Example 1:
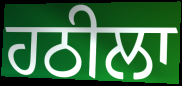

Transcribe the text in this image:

ਹਠੀਲਾ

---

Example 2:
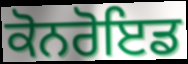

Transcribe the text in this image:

ਕੋਨਰੋਇਡ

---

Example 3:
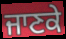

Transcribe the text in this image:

ਜਾਣਕੇ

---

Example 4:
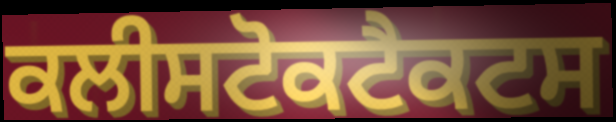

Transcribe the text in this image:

ਕਲੀਸਟੋਕਟੈਕਟਸ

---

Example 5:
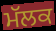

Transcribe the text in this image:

ਮੱਲਕ